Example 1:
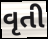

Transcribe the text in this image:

વૃતી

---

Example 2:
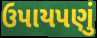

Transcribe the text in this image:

ઉપાયપણું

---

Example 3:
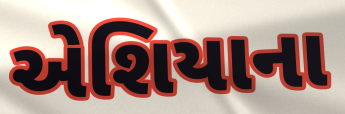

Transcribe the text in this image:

એશિયાના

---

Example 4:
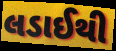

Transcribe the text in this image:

લડાઈથી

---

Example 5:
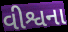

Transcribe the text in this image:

વીશ્વના